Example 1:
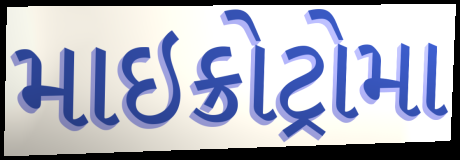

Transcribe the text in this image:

માઇક્રોટ્રોમા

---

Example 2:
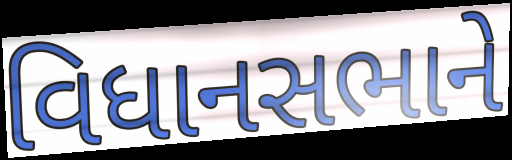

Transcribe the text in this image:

વિધાનસભાને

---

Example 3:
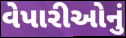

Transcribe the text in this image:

વેપારીઓનું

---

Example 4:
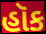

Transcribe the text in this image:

હૉક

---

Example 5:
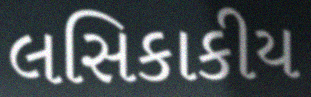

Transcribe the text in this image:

લસિકાકીય